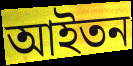
আইতন